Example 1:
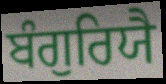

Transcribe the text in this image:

ਬੰਗੁਰਿਯੈ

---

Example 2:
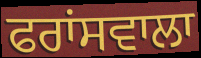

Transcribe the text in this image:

ਫਰਾਂਸਵਾਲਾ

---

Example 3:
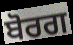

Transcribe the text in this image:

ਬੋਰਗ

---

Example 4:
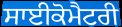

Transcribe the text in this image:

ਸਾਈਕੋਮੈਟਰੀ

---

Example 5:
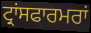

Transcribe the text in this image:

ਟ੍ਰਾਂਸਫਾਰਮਰਾਂ